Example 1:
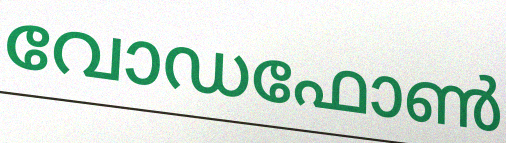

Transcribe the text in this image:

വോഡഫോൺ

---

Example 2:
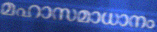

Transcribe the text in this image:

മഹാസമാധാനം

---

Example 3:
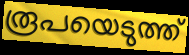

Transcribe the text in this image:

രൂപയെടുത്ത്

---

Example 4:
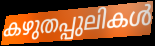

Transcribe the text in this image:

കഴുതപ്പുലികൾ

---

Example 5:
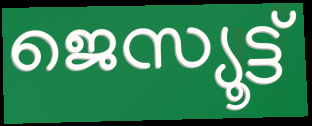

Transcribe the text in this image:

ജെസ്യൂട്ട്